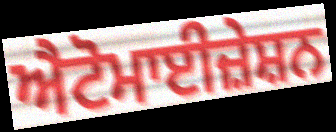
ਐਟੋਮਾਈਜ਼ੇਸ਼ਨ